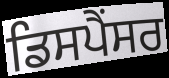
ਡਿਸਪੈਂਸਰ